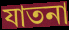
যাতনা